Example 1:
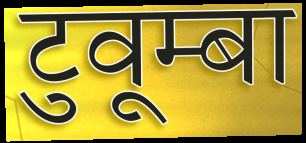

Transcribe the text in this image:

टुवूम्बा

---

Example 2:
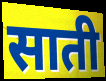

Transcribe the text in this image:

साती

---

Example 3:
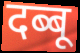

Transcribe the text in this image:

दब्बू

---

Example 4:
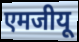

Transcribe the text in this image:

एमजीयू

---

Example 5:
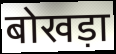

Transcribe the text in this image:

बोखड़ा